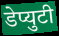
डेप्युटी